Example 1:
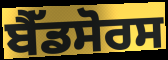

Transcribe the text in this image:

ਬੈੱਡਸੋਰਸ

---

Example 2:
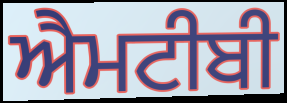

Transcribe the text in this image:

ਐਮਟੀਬੀ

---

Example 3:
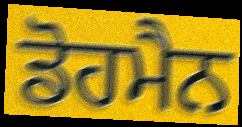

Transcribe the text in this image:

ਡੋਹਮੈਨ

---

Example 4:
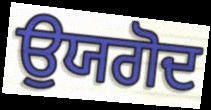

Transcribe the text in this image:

ਉਯਗੋਦ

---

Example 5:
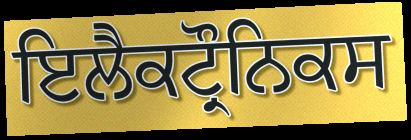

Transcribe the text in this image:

ਇਲੈਕਟ੍ਰੌਨਿਕਸ